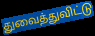
துவைத்துவிட்டு